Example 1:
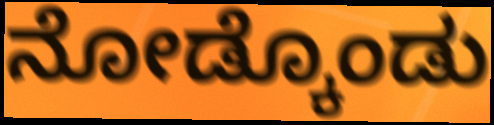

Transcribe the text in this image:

ನೋಡ್ಕೊಂಡು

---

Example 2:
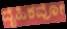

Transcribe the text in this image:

ದೈಹಿಕವೋ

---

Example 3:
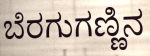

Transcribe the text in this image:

ಬೆರಗುಗಣ್ಣಿನ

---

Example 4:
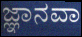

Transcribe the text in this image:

ಜ್ಞಾನವಾ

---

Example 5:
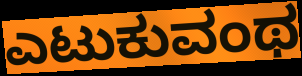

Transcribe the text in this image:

ಎಟುಕುವಂಥ